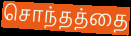
சொந்தத்தை